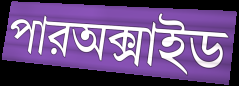
পারঅক্সাইড